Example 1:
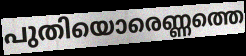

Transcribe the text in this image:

പുതിയൊരെണ്ണത്തെ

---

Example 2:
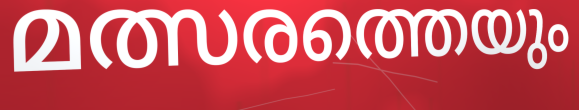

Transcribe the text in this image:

മത്സരത്തെയും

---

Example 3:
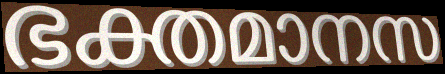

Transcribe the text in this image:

ഭക്തമാനസ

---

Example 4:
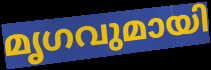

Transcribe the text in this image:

മൃഗവുമായി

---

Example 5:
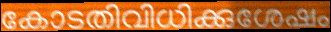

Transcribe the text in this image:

കോടതിവിധിക്കുശേഷം